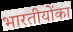
भारतीयोंका